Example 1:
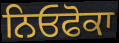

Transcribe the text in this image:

ਨਿਓਫੋਕਾ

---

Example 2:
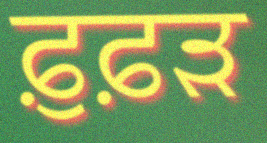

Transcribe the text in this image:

ਫ਼ੁਫ਼ੜ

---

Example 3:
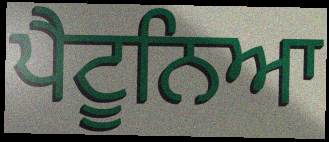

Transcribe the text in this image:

ਪੈਟੂਨਿਆ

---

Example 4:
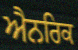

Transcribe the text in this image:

ਐਨਰਿਕ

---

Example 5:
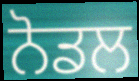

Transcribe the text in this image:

ਨੋਡਲ